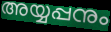
അയ്യപ്പനും